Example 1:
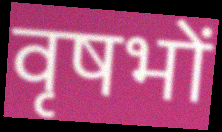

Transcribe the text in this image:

वृषभों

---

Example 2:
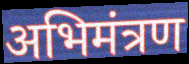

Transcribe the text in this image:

अभिमंत्रण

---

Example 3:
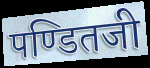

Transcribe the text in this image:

पण्डितजी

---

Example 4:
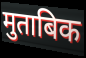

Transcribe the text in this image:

मुताबिक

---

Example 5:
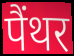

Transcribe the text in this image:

पैंथर